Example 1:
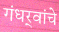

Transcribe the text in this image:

गंधर्वांचे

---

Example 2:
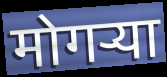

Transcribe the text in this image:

मोगऱ्या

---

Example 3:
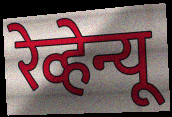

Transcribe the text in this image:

रेव्हेन्यू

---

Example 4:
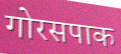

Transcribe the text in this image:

गोरसपाक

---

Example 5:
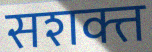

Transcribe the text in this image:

सशक्त